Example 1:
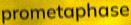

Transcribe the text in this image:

prometaphase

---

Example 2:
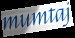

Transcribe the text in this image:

mumtaj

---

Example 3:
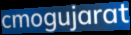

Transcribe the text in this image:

cmogujarat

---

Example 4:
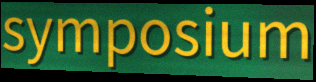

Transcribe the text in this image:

symposium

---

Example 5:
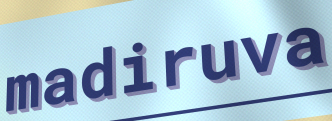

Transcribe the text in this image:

madiruva